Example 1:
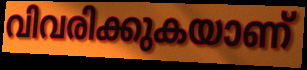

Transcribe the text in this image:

വിവരിക്കുകയാണ്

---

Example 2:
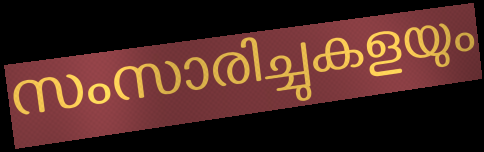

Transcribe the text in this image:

സംസാരിച്ചുകളയും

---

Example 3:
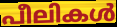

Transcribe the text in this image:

പീലികൾ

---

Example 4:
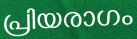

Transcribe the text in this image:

പ്രിയരാഗം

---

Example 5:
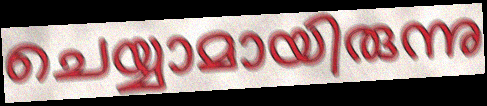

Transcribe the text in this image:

ചെയ്യാമായിരുന്നു